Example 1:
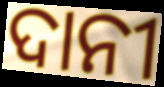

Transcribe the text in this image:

ଦାନୀ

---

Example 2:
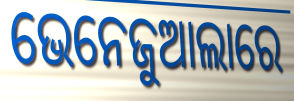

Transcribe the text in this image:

ଭେନେଜୁଆଲାରେ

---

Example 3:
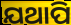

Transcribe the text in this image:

ଯଥାପି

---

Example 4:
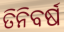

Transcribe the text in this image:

ତିନିବର୍ଷ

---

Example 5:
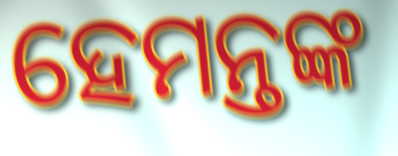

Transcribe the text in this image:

ହେମନ୍ତଙ୍କ